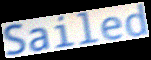
Sailed